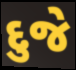
દુજે